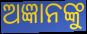
ଅଜ୍ଞାନଙ୍କୁ